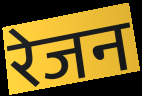
रेजन